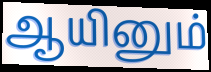
ஆயினும்